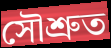
সৌশ্ৰুত